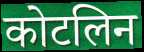
कोटलिन